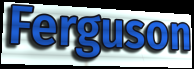
Ferguson